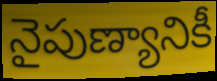
నైపుణ్యానికీ